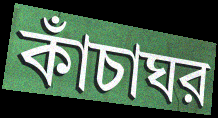
কাঁচাঘর